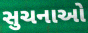
સુચનાઓ